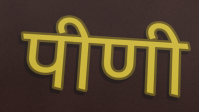
पीणी